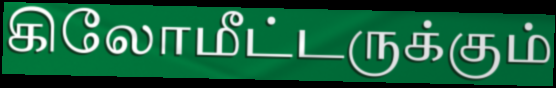
கிலோமீட்டருக்கும்